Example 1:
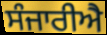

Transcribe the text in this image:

ਸੰਜਾਰੀਐ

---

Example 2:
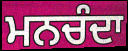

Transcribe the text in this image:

ਮਨਚੰਦਾ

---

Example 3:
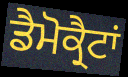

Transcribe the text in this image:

ਡੈਮੋਕ੍ਰੈਟਾਂ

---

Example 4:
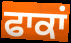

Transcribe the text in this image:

ਫਾਕਾਂ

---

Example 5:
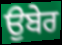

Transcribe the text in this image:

ਉਬੇਰ